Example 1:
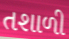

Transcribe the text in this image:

તશાળી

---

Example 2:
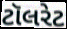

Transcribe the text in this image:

ટૉલરેટ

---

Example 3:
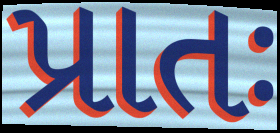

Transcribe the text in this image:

પ્રાતઃ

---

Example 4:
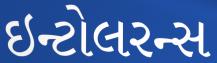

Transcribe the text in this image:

ઇન્ટોલરન્સ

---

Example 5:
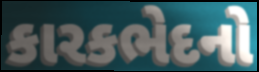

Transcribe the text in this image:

કારકભેદનો